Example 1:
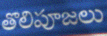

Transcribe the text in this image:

తొలిపూజలు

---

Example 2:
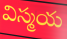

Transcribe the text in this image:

విస్మయ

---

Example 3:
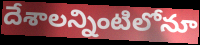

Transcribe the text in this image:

దేశాలన్నింటిలోనూ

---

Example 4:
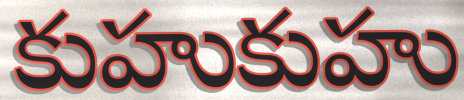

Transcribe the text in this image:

కుహుకుహు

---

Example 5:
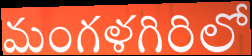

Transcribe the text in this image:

మంగళగిరిలో